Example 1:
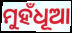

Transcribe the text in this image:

ମୁହଁଧୂଆ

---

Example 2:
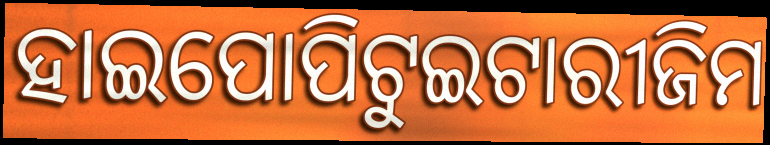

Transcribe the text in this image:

ହାଇପୋପିଟୁଇଟାରୀଜିମ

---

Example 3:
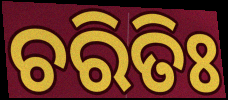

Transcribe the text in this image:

ଚରିତିଃ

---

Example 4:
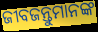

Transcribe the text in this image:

ଜୀବଜନ୍ତୁମାନଙ୍କ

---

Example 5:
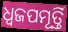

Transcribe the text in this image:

ଧ୍ୱଜପମୂର୍ତ୍ତି